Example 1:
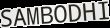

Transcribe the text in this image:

SAMBODHI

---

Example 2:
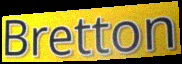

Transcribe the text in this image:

Bretton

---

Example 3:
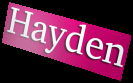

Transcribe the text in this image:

Hayden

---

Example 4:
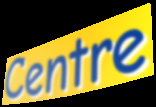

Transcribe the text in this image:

Centre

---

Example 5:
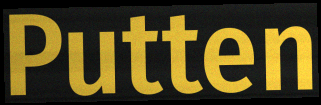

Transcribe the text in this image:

Putten